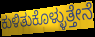
ಕುಳಿತುಕೊಳ್ಳುತ್ತೇನೆ